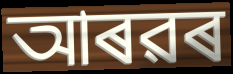
আৰৱৰ